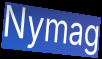
Nymag